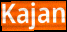
Kajan